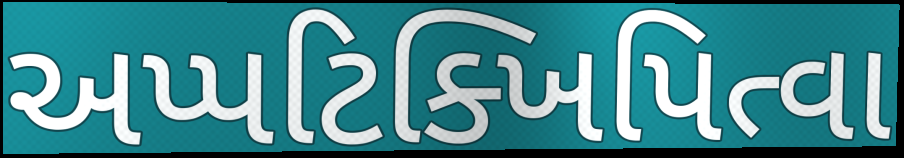
અપ્પટિક્ખિપિત્વા